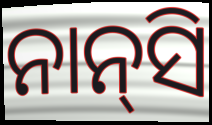
ନାନ୍‌ସି